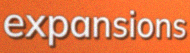
expansions